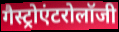
गैस्ट्रोएंटरोलॉजी